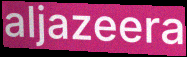
aljazeera